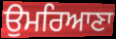
ਉਮਰਿਆਣਾ